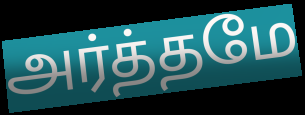
அர்த்தமே